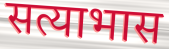
सत्याभास